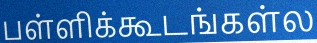
பள்ளிக்கூடங்கள்ல